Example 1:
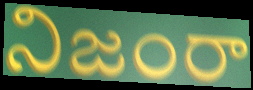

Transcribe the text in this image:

నిజంరా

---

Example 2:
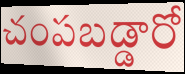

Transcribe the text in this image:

చంపబడ్డారో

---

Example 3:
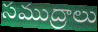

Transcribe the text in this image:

సముద్రాలు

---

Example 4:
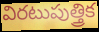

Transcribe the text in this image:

విరటుపుత్త్రిక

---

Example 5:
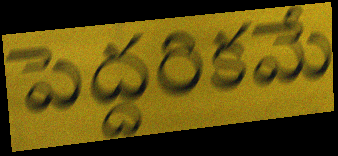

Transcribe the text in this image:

పెద్దరికమే